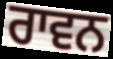
ਰਾਵਨ